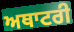
ਅਥਾਟਰੀ